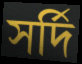
সর্দি